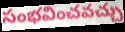
సంభవించవచ్చు